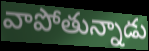
వాపోతున్నాడు